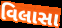
વિલાસા